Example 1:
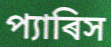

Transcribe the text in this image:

প্যাৰিস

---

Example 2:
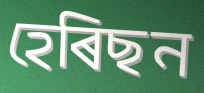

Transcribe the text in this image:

হেৰিছন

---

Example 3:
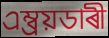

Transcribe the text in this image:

এম্ব্ৰয়ডাৰী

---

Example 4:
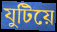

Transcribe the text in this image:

যুটিয়ে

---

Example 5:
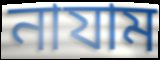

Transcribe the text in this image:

নাযাম